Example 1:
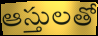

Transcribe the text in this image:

ఆస్తులతో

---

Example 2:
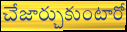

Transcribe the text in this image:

చేజార్చుకుంటారో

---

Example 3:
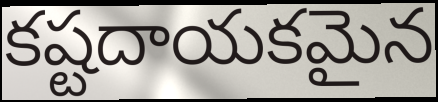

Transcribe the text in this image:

కష్టదాయకమైన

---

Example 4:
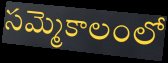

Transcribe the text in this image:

సమ్మెకాలంలో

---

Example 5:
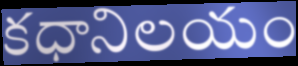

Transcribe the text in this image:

కధానిలయం